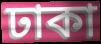
ঢাকা